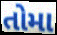
તોમા